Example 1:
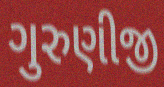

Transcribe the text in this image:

ગુરુણીજી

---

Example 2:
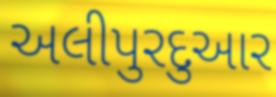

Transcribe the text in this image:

અલીપુરદુઆર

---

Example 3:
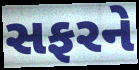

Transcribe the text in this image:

સફરને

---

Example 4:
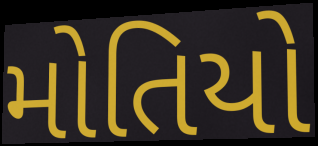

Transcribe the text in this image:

મોતિયો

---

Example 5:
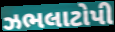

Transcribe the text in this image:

ઝભલાટોપી